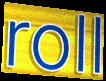
roll